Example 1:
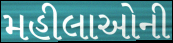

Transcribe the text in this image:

મહીલાઓની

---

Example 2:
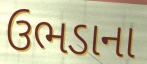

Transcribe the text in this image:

ઉભડાના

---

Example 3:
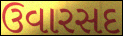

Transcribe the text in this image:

ઉવારસદ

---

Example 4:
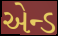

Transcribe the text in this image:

એન્ડ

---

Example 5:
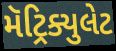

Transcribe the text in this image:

મૅટ્રિક્યુલેટ